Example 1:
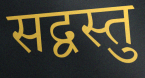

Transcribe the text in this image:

सद्वस्तु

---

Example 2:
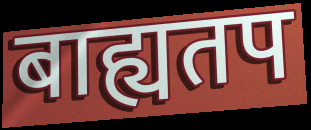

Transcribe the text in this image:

बाह्यतप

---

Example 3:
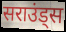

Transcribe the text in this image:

सराउंड्स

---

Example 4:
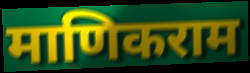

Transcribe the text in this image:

माणिकराम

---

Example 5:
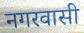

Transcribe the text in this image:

नगरवासी